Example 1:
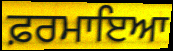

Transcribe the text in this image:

ਫ਼ਰਮਾਇਆ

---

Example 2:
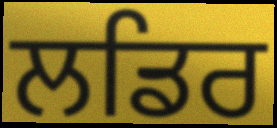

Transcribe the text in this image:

ਲਡਿਰ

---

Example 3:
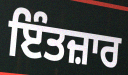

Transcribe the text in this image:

ਇੰਤਜ਼ਾਰ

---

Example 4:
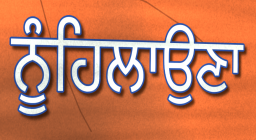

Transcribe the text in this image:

ਨੂੰਹਿਲਾਉਣਾ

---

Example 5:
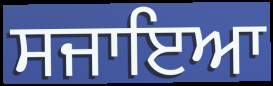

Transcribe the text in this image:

ਸਜਾਇਆ